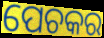
ପେଚକର